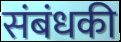
संबंधकी